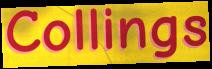
Collings